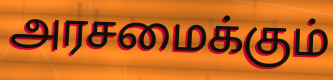
அரசமைக்கும்